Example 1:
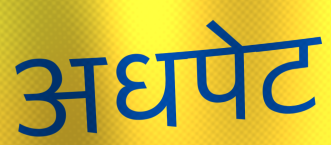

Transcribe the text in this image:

अधपेट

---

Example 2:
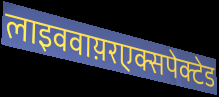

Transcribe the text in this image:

लाइववाय़रएक्सपेक्टेड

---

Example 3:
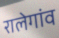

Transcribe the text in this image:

रालेगांव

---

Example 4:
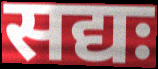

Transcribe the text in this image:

सद्यः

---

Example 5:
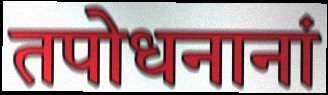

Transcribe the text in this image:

तपोधनानां